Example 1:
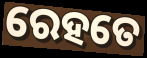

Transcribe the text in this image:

ରେହତେ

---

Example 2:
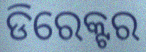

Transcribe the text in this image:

ଡିରେକ୍ଟର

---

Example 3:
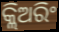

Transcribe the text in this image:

କ୍ଲିଅରିଂ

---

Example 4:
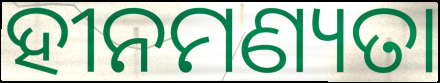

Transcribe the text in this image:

ହୀନମଣ୍ୟତା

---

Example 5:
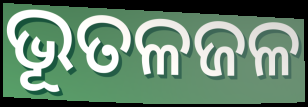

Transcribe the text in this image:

ଭୂତଳଜଳ